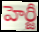
హెర్జీ